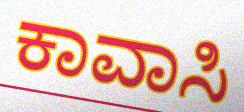
ಕಾವಾಸಿ